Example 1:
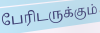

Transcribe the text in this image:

பேரிடருக்கும்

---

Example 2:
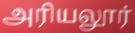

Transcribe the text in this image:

அரியலூர்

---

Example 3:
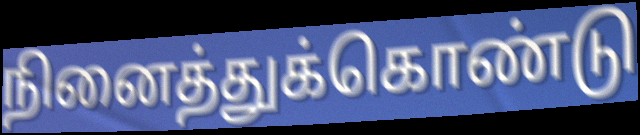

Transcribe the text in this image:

நினைத்துக்கொண்டு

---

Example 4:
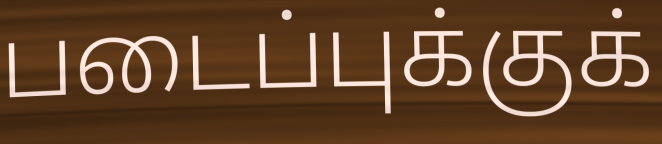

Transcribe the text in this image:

படைப்புக்குக்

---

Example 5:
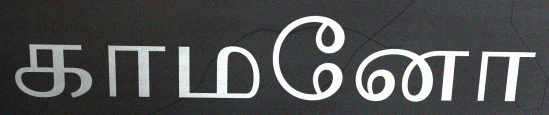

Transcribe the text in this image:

காமனோ